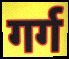
गर्ग